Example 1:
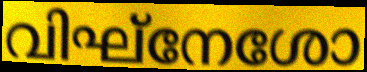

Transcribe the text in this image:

വിഘ്നേശോ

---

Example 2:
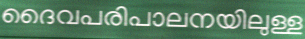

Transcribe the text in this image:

ദൈവപരിപാലനയിലുള്ള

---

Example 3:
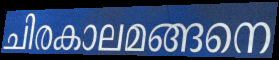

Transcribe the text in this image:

ചിരകാലമങ്ങനെ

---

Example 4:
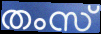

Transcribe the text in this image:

തംസ്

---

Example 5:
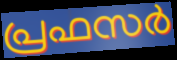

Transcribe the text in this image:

പ്രഫസർ